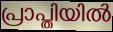
പ്രാപ്തിയിൽ